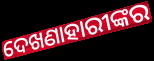
ଦେଖଣାହାରୀଙ୍କର